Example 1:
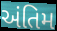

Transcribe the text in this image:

અંતિમ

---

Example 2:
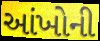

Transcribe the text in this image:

આંખોની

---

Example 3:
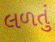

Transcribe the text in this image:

લળતું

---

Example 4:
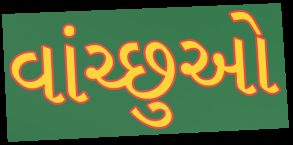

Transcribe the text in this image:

વાંચ્છુઓ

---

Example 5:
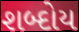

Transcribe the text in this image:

શબ્દોય